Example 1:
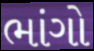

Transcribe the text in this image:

ભાંગો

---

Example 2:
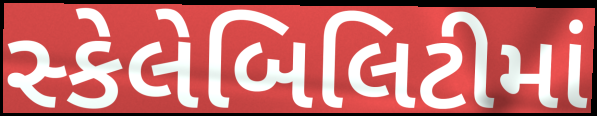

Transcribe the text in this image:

સ્કેલેબિલિટીમાં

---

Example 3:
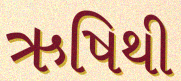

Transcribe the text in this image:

ઋષિથી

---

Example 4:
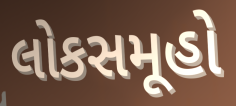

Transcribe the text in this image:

લોકસમૂહો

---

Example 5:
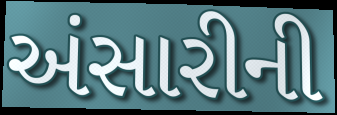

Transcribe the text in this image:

અંસારીની